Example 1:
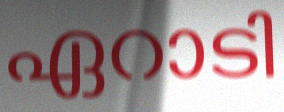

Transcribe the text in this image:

ഏറാടി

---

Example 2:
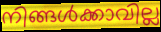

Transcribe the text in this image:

നിങ്ങൾക്കാവില്ല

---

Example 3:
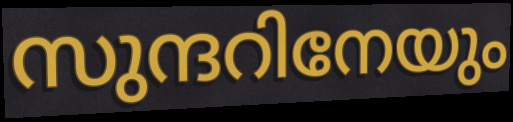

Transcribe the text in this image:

സുന്ദറിനേയും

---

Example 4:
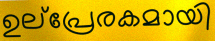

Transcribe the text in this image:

ഉല്പ്രേരകമായി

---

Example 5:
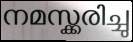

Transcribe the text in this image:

നമസ്ക്കരിച്ചു